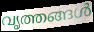
വൃത്തങ്ങൾ